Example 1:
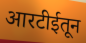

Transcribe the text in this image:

आरटीईतून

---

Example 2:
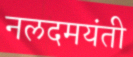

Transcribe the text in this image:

नलदमयंती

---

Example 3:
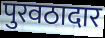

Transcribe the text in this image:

पुरवठादार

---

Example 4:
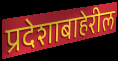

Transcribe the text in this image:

प्रदेशाबाहेरील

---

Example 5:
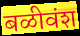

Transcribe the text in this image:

बळीवंश